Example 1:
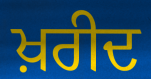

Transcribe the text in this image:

ਖ਼ਰੀਦ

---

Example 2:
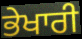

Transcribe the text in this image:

ਭੇਖਾਰੀ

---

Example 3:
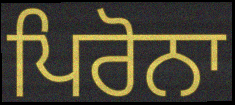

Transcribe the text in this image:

ਪਿਰੋਨਾ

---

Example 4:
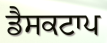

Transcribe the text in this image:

ਡੈਸਕਟਾਪ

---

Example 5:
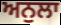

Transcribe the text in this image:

ਅਨੁਲਾ